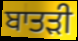
ਬਾਤੜੀ